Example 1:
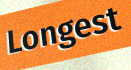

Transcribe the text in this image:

Longest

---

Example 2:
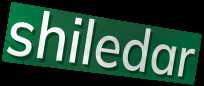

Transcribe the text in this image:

shiledar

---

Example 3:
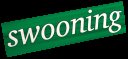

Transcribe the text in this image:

swooning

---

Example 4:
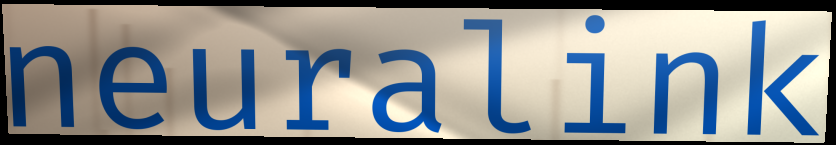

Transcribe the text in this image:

neuralink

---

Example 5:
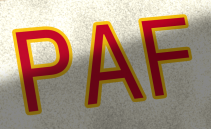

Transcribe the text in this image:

PAF